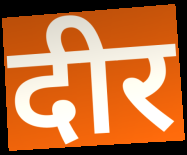
दीर